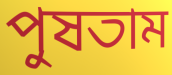
পুষতাম